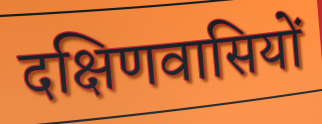
दक्षिणवासियों